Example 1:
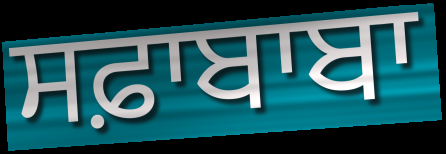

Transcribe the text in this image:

ਸਫ਼ਾਬਾਬਾ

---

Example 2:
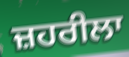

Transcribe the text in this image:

ਜ਼ਹਰੀਲਾ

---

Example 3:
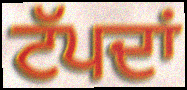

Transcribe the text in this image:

ਟੱਪਦਾਂ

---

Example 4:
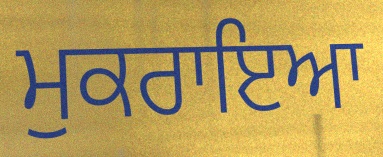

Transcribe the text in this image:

ਮੁਕਰਾਇਆ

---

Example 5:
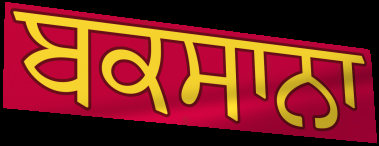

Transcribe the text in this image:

ਬਕਸਾਨਾ